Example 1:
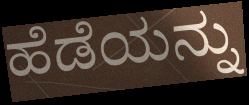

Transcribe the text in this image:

ಹೆಡೆಯನ್ನು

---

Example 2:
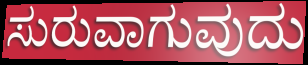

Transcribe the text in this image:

ಸುರುವಾಗುವುದು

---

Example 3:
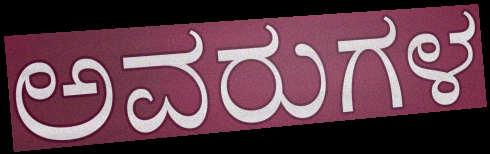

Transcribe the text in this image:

ಅವರುಗಳ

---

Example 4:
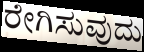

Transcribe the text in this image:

ರೇಗಿಸುವುದು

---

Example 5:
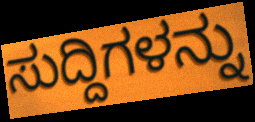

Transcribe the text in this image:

ಸುದ್ದಿಗಳನ್ನು